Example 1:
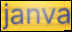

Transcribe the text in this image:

janva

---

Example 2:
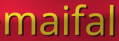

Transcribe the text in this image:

maifal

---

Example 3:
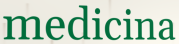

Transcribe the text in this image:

medicina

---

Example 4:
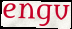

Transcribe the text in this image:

engu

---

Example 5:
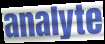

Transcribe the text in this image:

analyte